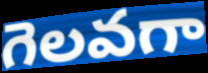
గెలవగా